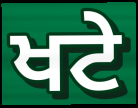
ਖਟੇ